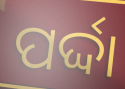
ପର୍ଦ୍ଦା